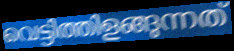
വെട്ടിത്തിളങ്ങുന്നത്